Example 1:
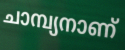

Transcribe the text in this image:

ചാമ്പ്യനാണ്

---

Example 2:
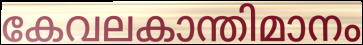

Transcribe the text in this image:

കേവലകാന്തിമാനം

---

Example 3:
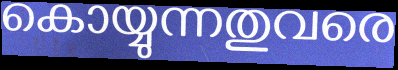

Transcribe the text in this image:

കൊയ്യുന്നതുവരെ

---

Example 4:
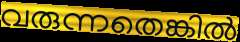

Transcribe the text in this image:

വരുന്നതെങ്കിൽ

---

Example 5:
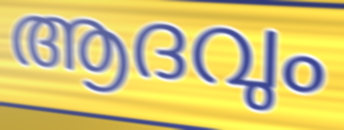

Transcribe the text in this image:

ആദവും